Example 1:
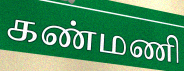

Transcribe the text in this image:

கண்மணி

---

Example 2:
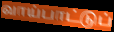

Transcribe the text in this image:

வாய்பாட்டுப்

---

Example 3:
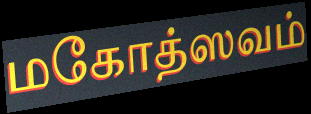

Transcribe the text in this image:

மகோத்ஸவம்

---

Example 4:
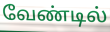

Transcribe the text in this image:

வேண்டில்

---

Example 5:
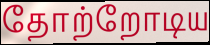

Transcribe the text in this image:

தோற்றோடிய